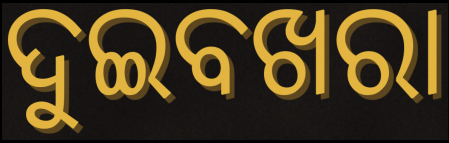
ଦୁଇବଖରା